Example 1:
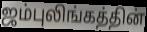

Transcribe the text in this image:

ஜம்புலிங்கத்தின்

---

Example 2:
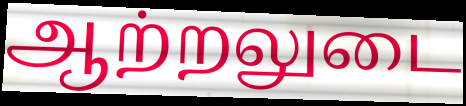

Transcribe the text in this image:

ஆற்றலுடை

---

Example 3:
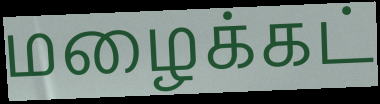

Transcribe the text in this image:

மழைக்கட்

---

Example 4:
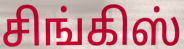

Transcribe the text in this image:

சிங்கிஸ்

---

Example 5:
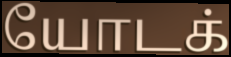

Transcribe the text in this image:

யோடக்